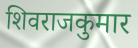
शिवराजकुमार